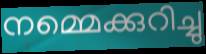
നമ്മെക്കുറിച്ചു